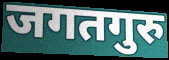
जगतगुरु